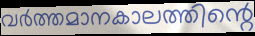
വർത്തമാനകാലത്തിന്റെ